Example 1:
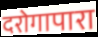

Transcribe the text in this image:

दरोगापारा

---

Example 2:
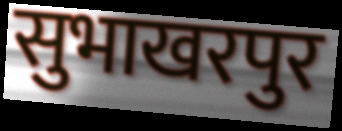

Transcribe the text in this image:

सुभाखरपुर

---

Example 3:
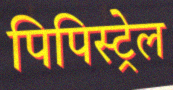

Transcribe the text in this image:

पिपिस्ट्रेल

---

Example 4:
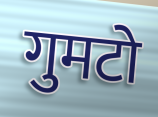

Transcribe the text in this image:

गुमटो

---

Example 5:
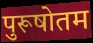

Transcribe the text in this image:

पुरूषोतम